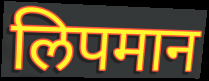
लिपमान